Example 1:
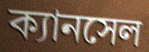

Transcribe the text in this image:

ক্যানসেল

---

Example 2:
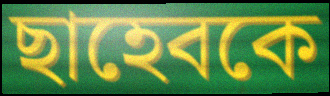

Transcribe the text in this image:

ছাহেবকে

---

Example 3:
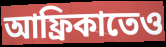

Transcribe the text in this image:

আফ্রিকাতেও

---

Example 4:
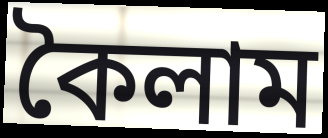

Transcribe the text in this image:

কৈলাম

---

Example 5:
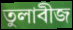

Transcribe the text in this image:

তুলাবীজ